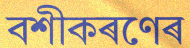
বশীকৰণেৰ